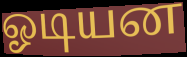
ஓடியன